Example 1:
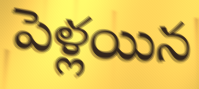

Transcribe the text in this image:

పెళ్లయిన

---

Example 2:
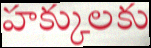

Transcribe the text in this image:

హక్కులకు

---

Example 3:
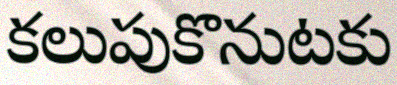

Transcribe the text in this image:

కలుపుకొనుటకు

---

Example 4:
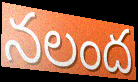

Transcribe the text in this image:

నలంద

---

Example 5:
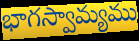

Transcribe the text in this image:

భాగస్వామ్యము